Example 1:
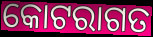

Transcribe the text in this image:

କୋଟରାଗତ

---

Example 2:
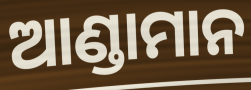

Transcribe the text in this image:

ଆଣ୍ଡାମାନ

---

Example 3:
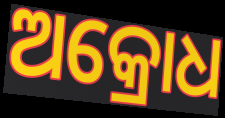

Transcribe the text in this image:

ଅକ୍ରୋଧ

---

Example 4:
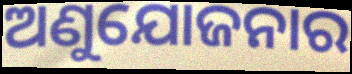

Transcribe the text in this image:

ଅଣୁଯୋଜନାର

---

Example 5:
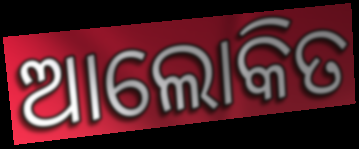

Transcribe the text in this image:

ଆଲୋକିତ